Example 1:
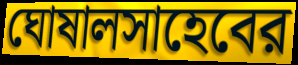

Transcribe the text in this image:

ঘোষালসাহেবের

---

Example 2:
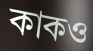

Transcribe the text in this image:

কাকও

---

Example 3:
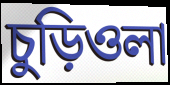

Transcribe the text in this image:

চুড়িওলা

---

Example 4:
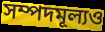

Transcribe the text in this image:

সম্পদমূল্যও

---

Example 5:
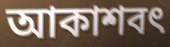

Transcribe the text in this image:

আকাশবৎ